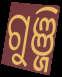
ଗୁଞ୍ଜି